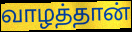
வாழத்தான்